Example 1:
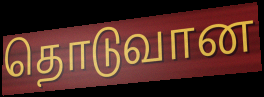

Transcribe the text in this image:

தொடுவான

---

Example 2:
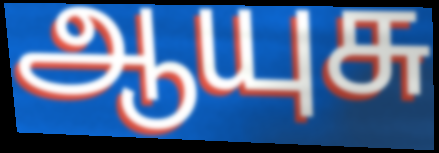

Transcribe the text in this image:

ஆயுசு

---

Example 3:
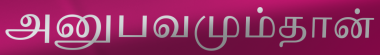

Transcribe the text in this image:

அனுபவமும்தான்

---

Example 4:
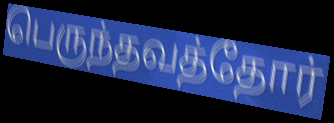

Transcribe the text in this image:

பெருந்தவத்தோர்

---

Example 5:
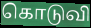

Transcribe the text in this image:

கொடுவி